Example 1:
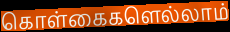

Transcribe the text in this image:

கொள்கைகளெல்லாம்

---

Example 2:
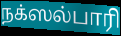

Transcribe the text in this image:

நக்ஸல்பாரி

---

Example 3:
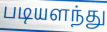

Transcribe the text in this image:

படியளந்து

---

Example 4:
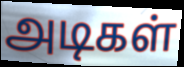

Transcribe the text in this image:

அடிகள்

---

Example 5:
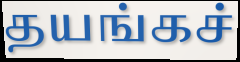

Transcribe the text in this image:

தயங்கச்